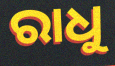
ରାଧୁ